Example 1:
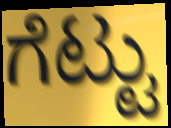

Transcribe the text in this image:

ಗೆಟ್ಟು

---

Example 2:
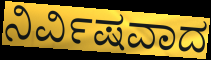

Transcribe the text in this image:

ನಿರ್ವಿಷವಾದ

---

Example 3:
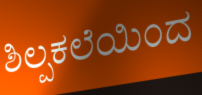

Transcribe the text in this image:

ಶಿಲ್ಪಕಲೆಯಿಂದ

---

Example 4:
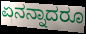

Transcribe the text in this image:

ಏನನ್ನಾದರೂ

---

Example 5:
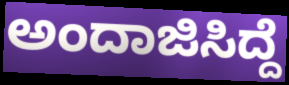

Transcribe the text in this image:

ಅಂದಾಜಿಸಿದ್ದೆ